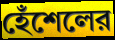
হেঁশেলের